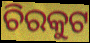
ଚିରକୁଟ